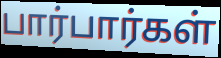
பார்பார்கள்